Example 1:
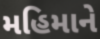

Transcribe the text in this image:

મહિમાને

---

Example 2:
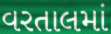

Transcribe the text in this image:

વરતાલમાં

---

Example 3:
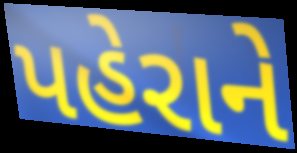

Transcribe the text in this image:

પહેરાને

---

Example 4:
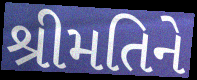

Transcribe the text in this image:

શ્રીમતિને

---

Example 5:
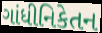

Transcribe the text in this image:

ગાંધીનિકેતન